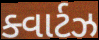
ક્વાર્ટઝ